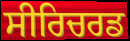
ਸੀਰਿਚਰਡ